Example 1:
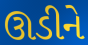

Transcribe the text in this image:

ઊડીને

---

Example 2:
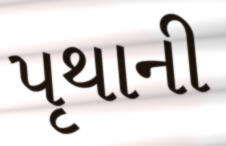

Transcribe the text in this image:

પૃથાની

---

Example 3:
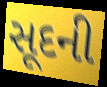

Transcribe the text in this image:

સૂદની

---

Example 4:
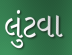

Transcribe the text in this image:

લુંટવા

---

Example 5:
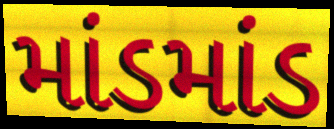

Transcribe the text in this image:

માંડમાંડ